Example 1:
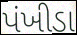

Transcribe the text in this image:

પંખીડા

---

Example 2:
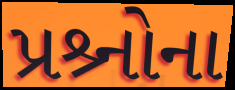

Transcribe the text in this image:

પ્રશ્ર્નોના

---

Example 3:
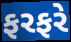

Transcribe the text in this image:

ફરફરે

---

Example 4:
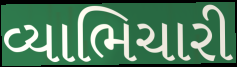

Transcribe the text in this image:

વ્યાભિચારી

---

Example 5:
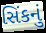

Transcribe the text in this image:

સિંકનું